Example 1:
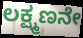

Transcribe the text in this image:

ಲಕ್ಷ್ಮಣನೇ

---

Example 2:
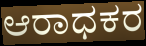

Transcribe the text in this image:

ಆರಾಧಕರ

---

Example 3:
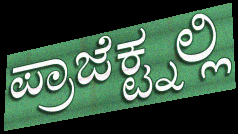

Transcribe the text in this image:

ಪ್ರಾಜೆಕ್ಟ್ನಲ್ಲಿ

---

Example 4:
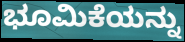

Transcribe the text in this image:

ಭೂಮಿಕೆಯನ್ನು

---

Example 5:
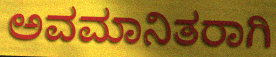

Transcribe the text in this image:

ಅವಮಾನಿತರಾಗಿ